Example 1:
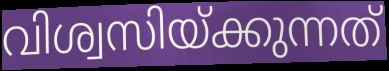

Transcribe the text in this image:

വിശ്വസിയ്ക്കുന്നത്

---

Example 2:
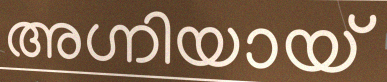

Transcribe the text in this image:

അഗ്നിയായ്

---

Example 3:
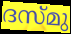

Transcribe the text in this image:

ദസ്മു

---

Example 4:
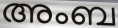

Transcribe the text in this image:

അംബ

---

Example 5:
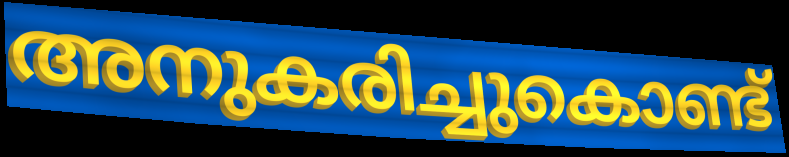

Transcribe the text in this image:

അനുകരിച്ചുകൊണ്ട്